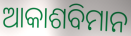
ଆକାଶବିମାନ